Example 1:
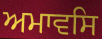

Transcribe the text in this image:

ਅਮਾਵਸਿ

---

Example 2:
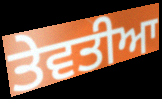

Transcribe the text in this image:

ਤੇਵਤੀਆ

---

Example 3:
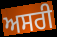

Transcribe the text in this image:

ਅਸਰੀ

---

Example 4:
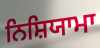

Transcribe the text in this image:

ਨਿਸ਼ਿਯਾਮਾ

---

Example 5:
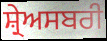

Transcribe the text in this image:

ਸ਼੍ਰੇਅਸਬਰੀ